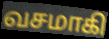
வசமாகி